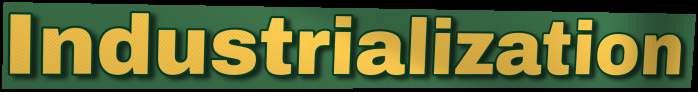
Industrialization